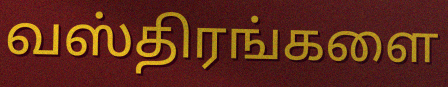
வஸ்திரங்களை